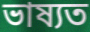
ভাষ্যত